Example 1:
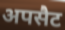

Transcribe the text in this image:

अपसैट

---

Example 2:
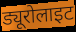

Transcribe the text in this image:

ड्यूरोलाइट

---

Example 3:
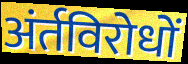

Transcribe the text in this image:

अंर्तविरोधों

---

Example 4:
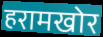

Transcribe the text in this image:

हरामखोर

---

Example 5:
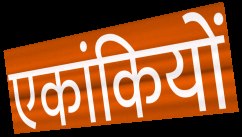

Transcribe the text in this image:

एकांकियों